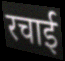
रचाई